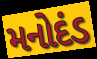
મનોદંડ